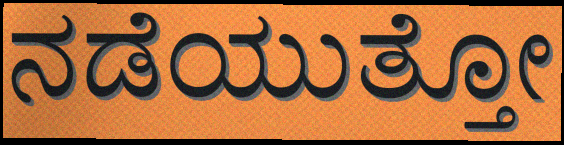
ನಡೆಯುತ್ತೋ